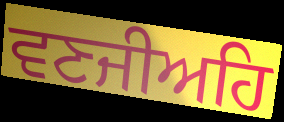
ਵਣਜੀਅਹਿ